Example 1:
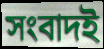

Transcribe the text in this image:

সংবাদই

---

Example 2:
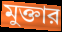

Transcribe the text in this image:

মুক্তার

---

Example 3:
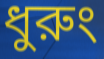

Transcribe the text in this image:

ধুরুং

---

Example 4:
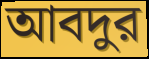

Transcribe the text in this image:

আবদুর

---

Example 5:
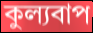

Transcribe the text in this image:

কুল্যবাপ